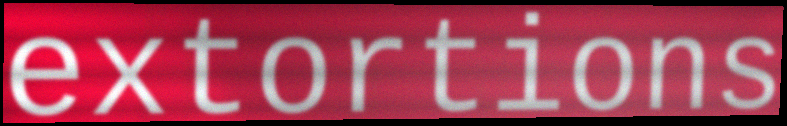
extortions